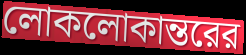
লোকলোকান্তরের